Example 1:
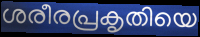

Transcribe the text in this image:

ശരീരപ്രകൃതിയെ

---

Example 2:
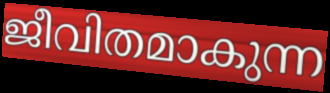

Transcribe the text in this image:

ജീവിതമാകുന്ന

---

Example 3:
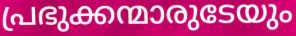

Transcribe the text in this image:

പ്രഭുക്കന്മാരുടേയും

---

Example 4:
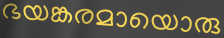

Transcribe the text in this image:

ഭയങ്കരമായൊരു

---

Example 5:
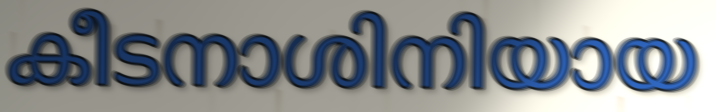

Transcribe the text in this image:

കീടനാശിനിയായ